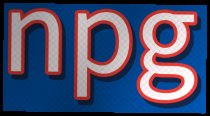
npg